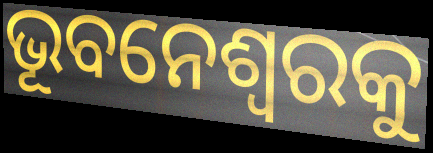
ଭୂବନେଶ୍ୱରକୁ